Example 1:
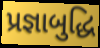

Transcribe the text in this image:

પ્રજ્ઞાબુદ્ધિ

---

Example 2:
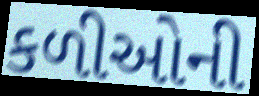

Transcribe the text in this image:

કળીઓની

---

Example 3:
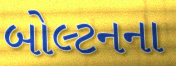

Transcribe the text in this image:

બોલ્ટનના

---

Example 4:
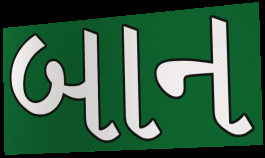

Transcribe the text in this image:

બાન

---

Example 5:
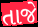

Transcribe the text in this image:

તાજે